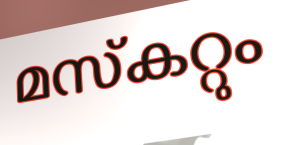
മസ്‌കറ്റും